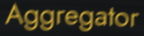
Aggregator